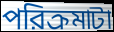
পরিক্রমাটা